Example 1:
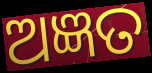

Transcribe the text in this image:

ଅଜ୍ଞତ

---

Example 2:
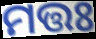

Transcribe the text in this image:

ମତ୍ତଃ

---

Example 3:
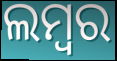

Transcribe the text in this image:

ଲମ୍ୱର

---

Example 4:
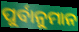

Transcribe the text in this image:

ପୁର୍ବାନୁମାନ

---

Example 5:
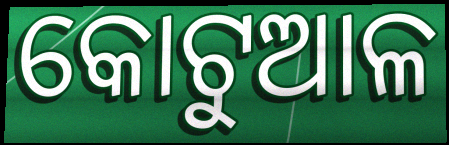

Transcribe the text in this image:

କୋଟୁଆଳ